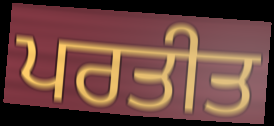
ਪਰਤੀਤ